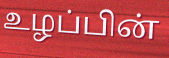
உழப்பின்